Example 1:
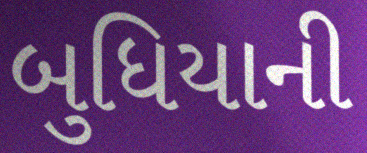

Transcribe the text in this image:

બુધિયાની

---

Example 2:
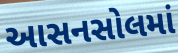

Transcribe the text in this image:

આસનસોલમાં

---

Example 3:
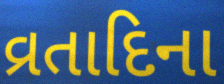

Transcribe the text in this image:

વ્રતાદિના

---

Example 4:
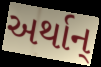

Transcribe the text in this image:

અર્થાન્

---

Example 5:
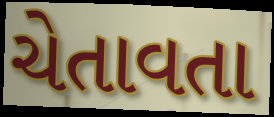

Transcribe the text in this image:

ચેતાવતા